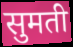
सुमती